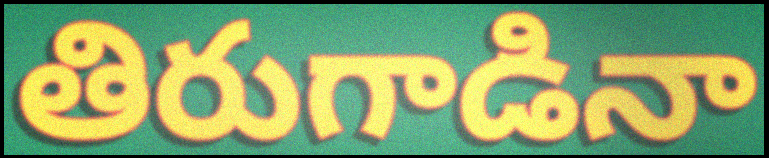
తిరుగాడినా